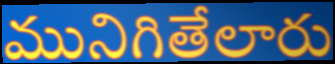
మునిగితేలారు